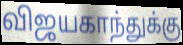
விஜயகாந்துக்கு